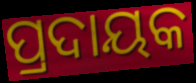
ପ୍ରଦାୟକ